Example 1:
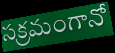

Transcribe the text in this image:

సక్రమంగానో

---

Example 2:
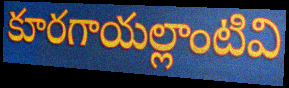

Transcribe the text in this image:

కూరగాయల్లాంటివి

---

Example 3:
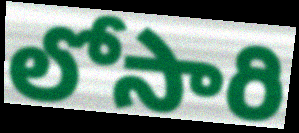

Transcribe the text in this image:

లోసారి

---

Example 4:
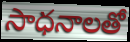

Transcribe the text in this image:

సాధనాలతో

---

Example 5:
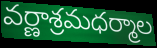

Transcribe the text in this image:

వర్ణాశ్రమధర్మాల